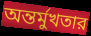
অন্তর্মুখতার